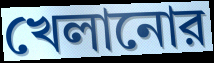
খেলানোর